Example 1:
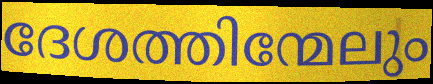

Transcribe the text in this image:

ദേശത്തിന്മേലും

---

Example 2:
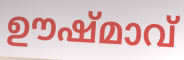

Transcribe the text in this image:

ഊഷ്മാവ്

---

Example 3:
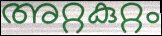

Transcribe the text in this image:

അറ്റകുറ്റം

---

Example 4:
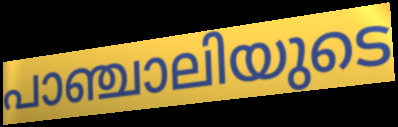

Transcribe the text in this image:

പാഞ്ചാലിയുടെ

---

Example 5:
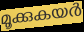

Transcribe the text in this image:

മൂക്കുകയർ